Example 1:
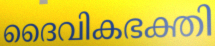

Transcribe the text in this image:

ദൈവികഭക്തി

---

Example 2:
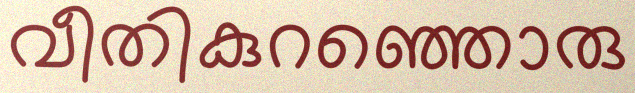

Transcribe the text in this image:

വീതികുറഞ്ഞൊരു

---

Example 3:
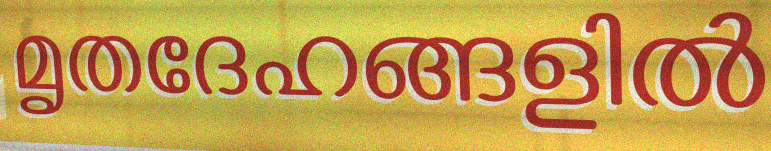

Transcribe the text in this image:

മൃതദേഹങ്ങളിൽ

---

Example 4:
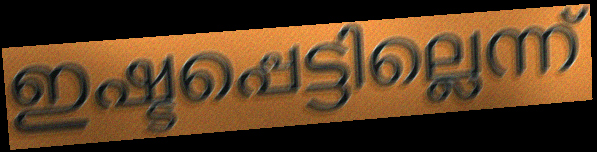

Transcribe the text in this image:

ഇഷ്ടപ്പെട്ടില്ലെന്ന്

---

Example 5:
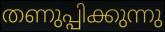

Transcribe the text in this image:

തണുപ്പിക്കുന്നു